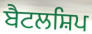
ਬੈਟਲਸ਼ਿਪ